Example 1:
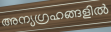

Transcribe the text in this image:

അന്യഗ്രഹങ്ങളിൽ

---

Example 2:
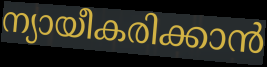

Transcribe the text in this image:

ന്യായീകരിക്കാൻ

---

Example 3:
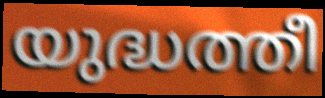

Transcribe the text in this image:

യുദ്ധത്തീ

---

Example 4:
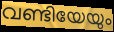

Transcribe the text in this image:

വണ്ടിയേയും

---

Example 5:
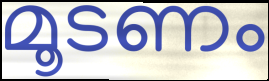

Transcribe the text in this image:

മൂടണം